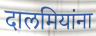
दालमियांना